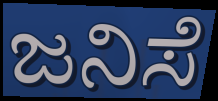
ಜನಿಸೆ